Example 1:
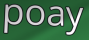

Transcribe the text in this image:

poay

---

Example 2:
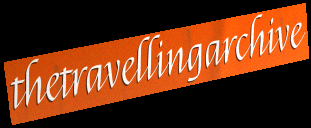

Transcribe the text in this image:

thetravellingarchive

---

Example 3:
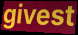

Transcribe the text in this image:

givest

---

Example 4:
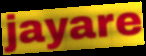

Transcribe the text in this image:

jayare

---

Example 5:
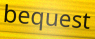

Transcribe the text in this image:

bequest